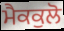
ਮੈਕਕੁਲੋ